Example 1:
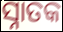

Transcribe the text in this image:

ସ୍ନାତକ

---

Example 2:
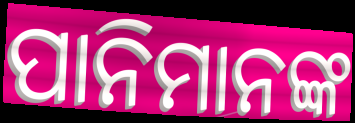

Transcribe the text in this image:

ପାନିମାନଙ୍କ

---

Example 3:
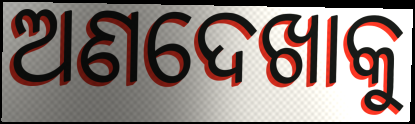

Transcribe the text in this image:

ଅଣଦେଖାକୁ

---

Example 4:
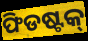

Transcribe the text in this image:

ଫିଡଷ୍ଟକ୍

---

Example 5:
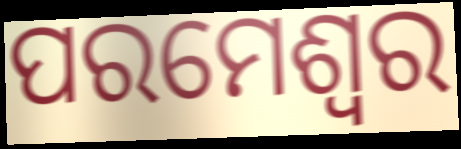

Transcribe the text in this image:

ପରମେଶ୍ବର